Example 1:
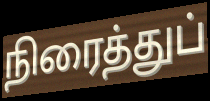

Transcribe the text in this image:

நிரைத்துப்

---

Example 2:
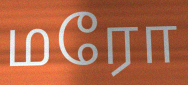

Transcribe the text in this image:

மரோ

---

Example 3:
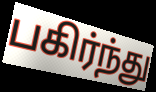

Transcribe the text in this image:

பகிர்ந்து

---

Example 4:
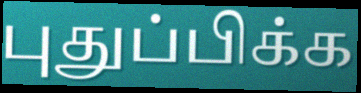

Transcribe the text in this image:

புதுப்பிக்க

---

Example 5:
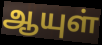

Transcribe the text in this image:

ஆயுள்